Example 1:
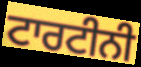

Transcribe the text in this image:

ਟਾਰਟੀਨੀ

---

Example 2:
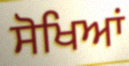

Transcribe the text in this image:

ਸੋਖਿਆਂ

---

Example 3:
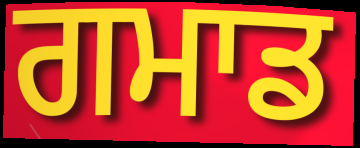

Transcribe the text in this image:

ਗਮਾਡ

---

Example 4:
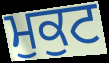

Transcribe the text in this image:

ਮੁਕੁਟ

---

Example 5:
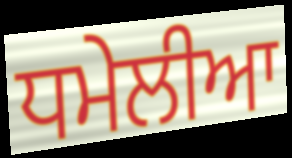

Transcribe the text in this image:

ਧਮੇਲੀਆ